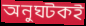
অনুঘটকই